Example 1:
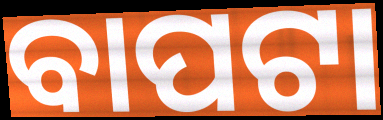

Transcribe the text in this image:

ବାପଟା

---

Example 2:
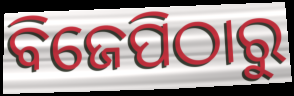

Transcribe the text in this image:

ବିଜେପିଠାରୁ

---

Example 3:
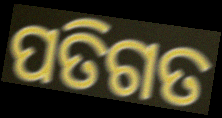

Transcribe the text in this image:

ପତିଗତ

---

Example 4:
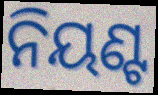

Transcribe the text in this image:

ନିୟଣ୍ଟ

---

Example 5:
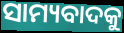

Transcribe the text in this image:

ସାମ୍ୟବାଦକୁ